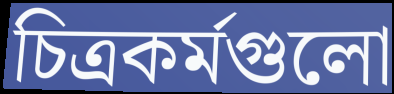
চিত্রকর্মগুলো